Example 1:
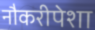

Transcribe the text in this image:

नौकरीपेशा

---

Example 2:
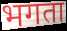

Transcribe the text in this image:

भगता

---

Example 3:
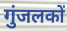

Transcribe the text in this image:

गुंजलकों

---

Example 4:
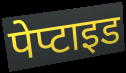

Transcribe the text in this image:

पेप्टाइड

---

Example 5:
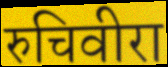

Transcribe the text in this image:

रुचिवीरा